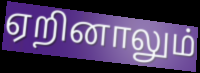
ஏறினாலும்